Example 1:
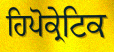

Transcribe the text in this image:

ਹਿਪੋਕ੍ਰੇਟਿਕ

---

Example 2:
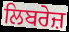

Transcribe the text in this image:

ਲਿਬਰੇਜ਼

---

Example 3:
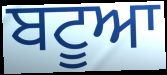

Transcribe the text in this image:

ਬਟੂਆ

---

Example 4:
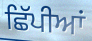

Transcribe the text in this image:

ਛਿੱਪੀਆਂ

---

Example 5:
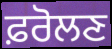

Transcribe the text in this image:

ਫ਼ਰੋਲਣ